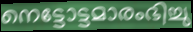
നെട്ടോട്ടമാരംഭിച്ചു